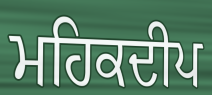
ਮਹਿਕਦੀਪ